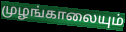
முழங்காலையும்